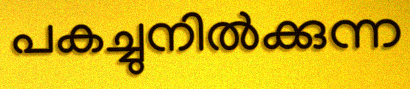
പകച്ചുനിൽക്കുന്ന